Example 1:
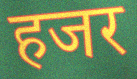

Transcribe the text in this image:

हजर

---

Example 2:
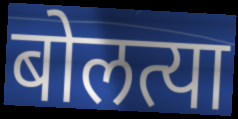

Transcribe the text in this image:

बोलत्या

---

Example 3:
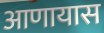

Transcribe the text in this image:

आणायास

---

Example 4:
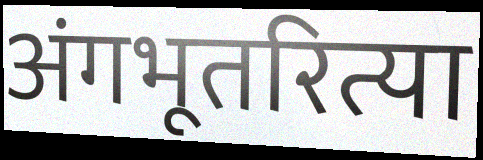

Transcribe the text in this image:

अंगभूतरित्या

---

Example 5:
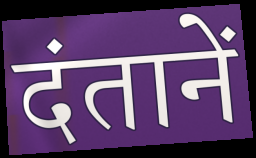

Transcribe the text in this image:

दंतानें